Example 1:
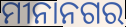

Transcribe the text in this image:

ମୀନାନଗର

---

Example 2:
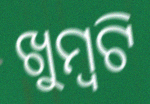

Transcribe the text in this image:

ଖୁମ୍ବଟି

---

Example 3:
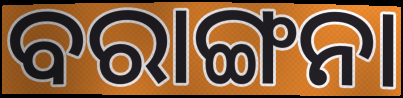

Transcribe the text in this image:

ବରାଙ୍ଗନା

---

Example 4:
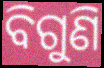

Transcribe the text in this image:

ବିଗୁଣି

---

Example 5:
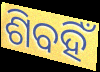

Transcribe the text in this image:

ଶିବହିଁ